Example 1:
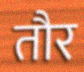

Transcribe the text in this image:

तौर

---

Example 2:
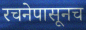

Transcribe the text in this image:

रचनेपासूनच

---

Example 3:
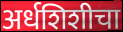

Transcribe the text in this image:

अर्धशिशीचा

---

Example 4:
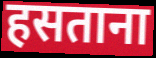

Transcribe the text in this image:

हसताना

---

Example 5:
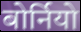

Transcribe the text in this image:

बोर्नियो